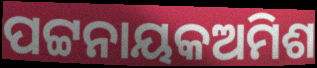
ପଟ୍ଟନାୟକଅମିଶ